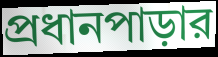
প্রধানপাড়ার